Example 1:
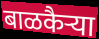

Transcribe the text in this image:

बाळकैऱ्या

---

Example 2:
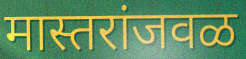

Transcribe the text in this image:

मास्तरांजवळ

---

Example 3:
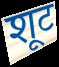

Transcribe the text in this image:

शूट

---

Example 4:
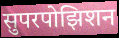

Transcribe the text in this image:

सुपरपोझिशन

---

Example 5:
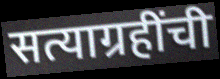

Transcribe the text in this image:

सत्याग्रहींची